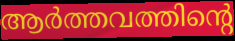
ആർത്തവത്തിന്റെ